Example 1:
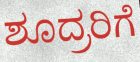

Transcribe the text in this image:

ಶೂದ್ರರಿಗೆ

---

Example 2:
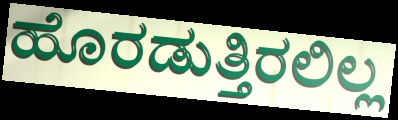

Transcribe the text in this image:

ಹೊರಡುತ್ತಿರಲಿಲ್ಲ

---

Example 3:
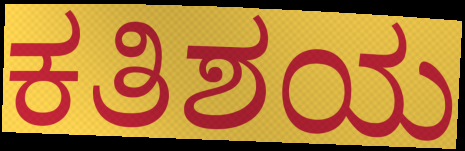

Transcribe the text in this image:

ಕತಿಶಯ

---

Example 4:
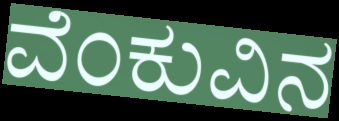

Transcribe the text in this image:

ವೆಂಕುವಿನ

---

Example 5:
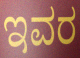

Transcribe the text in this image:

ಇವರ